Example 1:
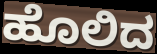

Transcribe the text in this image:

ಹೊಲಿದ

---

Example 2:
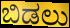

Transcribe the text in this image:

ಬಿಡಲು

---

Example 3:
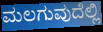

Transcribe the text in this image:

ಮಲಗುವುದೆಲ್ಲಿ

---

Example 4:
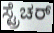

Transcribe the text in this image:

ಸ್ಟ್ರೆಚರ್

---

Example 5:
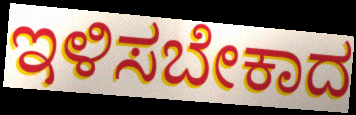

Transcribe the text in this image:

ಇಳಿಸಬೇಕಾದ